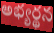
అభ్యర్థన